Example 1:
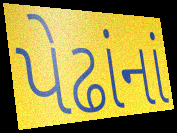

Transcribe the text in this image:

પેઢાંનાં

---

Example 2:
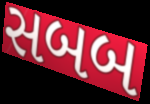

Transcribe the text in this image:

સબબ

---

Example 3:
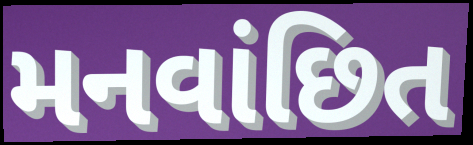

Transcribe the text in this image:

મનવાંછિત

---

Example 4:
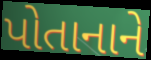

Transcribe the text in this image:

પોતાનાને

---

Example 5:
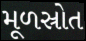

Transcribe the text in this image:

મૂળસ્રોત